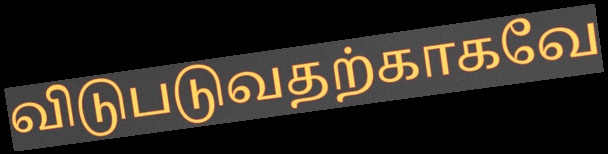
விடுபடுவதற்காகவே